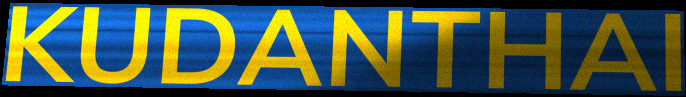
KUDANTHAI